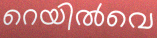
റെയിൽവെ